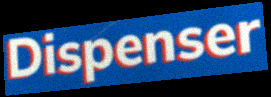
Dispenser